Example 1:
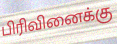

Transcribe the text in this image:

பிரிவினைக்கு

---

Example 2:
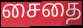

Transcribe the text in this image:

சைதை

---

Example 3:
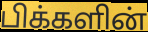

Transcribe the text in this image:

பிக்களின்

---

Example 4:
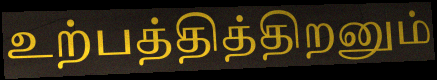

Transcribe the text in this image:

உற்பத்தித்திறனும்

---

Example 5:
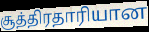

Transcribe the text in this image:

சூத்திரதாரியான